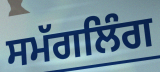
ਸਮੱਗਲਿੰਗ